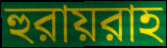
হুরায়রাহ